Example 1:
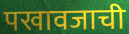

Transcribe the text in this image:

पखावजाची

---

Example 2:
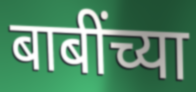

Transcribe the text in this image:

बाबींच्या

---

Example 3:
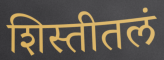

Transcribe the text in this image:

शिस्तीतलं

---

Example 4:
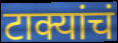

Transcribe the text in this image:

टाक्यांचं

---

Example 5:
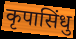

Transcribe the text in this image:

कृपासिंधु